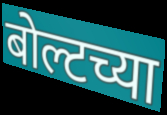
बोल्टच्या